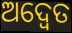
ଅଦ୍ଵେତ